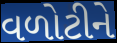
વળોટીને